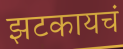
झटकायचं